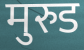
मुरुड